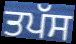
ਤਪੱਸ